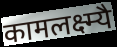
कामलक्ष्म्यै